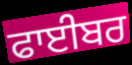
ਫਾਈਬਰ